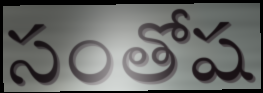
సంతోష